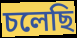
চলেছি